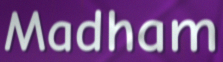
Madham